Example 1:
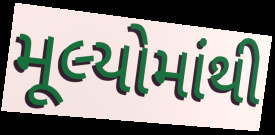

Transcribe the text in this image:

મૂલ્યોમાંથી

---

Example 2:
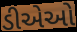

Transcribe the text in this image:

ડીએઓ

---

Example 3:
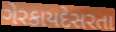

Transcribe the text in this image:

ગેરકાયદેસરતા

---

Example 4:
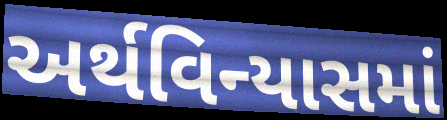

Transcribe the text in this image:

અર્થવિન્યાસમાં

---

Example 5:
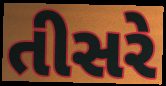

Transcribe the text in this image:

તીસરે